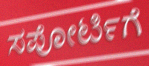
ಸಪೋರ್ಟಿಗೆ